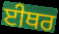
ਈਥਰ